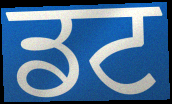
ਡਟ